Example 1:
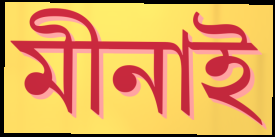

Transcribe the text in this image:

মীনাই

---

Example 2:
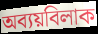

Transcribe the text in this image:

অব্যয়বিলাক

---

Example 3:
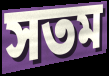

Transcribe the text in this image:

সতম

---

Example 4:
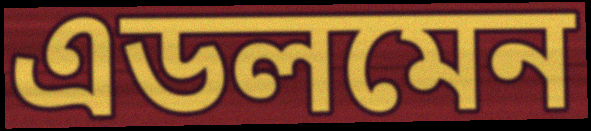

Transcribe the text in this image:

এডলমেন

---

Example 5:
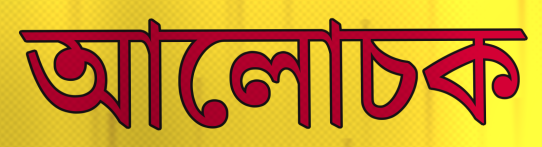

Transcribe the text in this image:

আলোচক